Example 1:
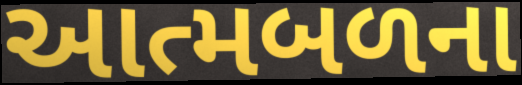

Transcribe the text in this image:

આત્મબળના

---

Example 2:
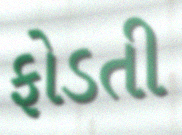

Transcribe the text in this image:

ફોડતી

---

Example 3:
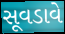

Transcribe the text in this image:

સૂવડાવે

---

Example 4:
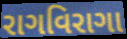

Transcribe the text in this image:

રાગવિરાગા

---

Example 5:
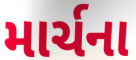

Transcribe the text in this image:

માર્ચના